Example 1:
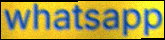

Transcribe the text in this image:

whatsapp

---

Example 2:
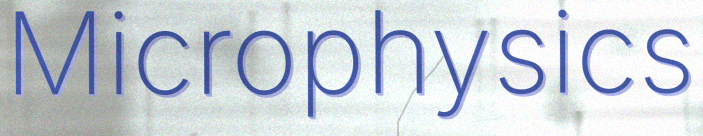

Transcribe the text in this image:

Microphysics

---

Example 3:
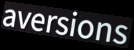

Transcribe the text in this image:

aversions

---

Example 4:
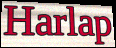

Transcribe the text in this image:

Harlap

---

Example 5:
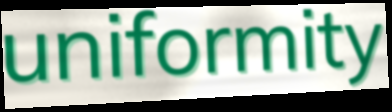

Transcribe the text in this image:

uniformity